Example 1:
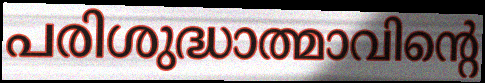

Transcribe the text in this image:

പരിശുദ്ധാത്മാവിന്റെ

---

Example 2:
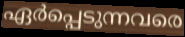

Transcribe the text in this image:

ഏർപ്പെടുന്നവരെ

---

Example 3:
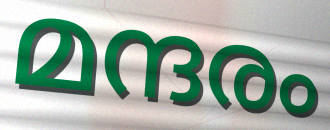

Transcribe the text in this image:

മന്ദരം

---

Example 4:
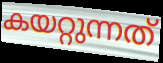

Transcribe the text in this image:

കയറ്റുന്നത്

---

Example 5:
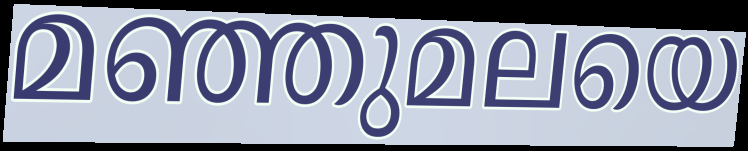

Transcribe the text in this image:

മഞ്ഞുമലയെ